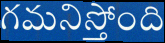
గమనిస్తోంది